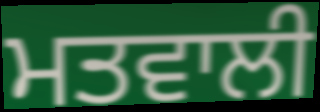
ਮਤਵਾਲੀ